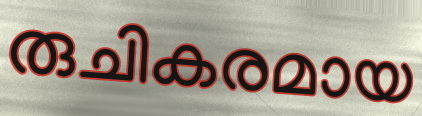
രുചികരമായ